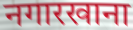
नगारखाना